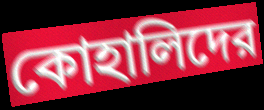
কোহালিদের